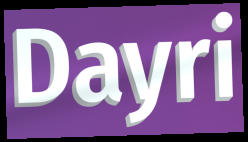
Dayri